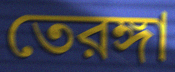
তেরঙ্গা